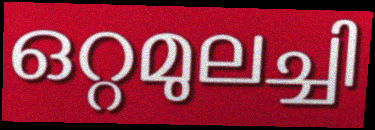
ഒറ്റമുലച്ചി